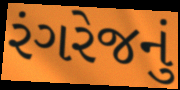
રંગરેજનું